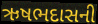
ઋષભદાસની